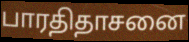
பாரதிதாசனை